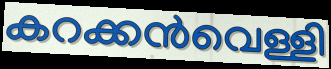
കറക്കൻവെള്ളി